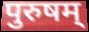
पुरुषम्